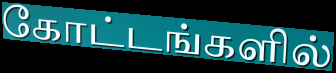
கோட்டங்களில்